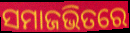
ସମାଜଭିତରେ